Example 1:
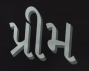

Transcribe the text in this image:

પ્રીમ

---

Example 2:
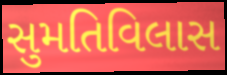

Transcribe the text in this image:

સુમતિવિલાસ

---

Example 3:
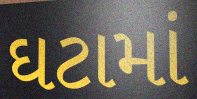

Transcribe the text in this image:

ઘટામાં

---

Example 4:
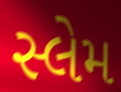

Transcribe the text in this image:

સ્લેમ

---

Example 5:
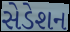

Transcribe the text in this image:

સેડેશન